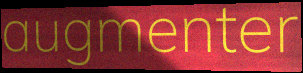
augmenter